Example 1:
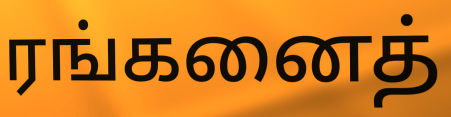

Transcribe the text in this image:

ரங்கனைத்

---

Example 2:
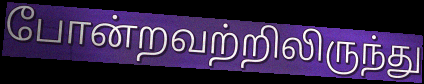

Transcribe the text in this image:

போன்றவற்றிலிருந்து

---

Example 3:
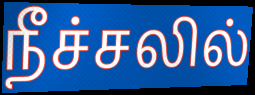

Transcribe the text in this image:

நீச்சலில்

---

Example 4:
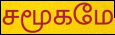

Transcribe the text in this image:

சமூகமே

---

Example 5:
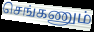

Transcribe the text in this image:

செங்கணும்